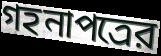
গহনাপত্রের